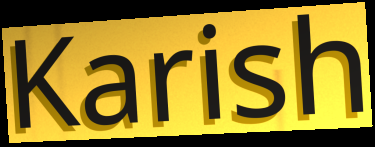
Karish